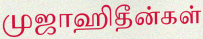
முஜாஹிதீன்கள்